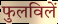
फुलविलें